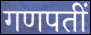
गणपतीं